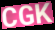
CGK